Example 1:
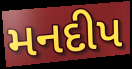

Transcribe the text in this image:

મનદીપ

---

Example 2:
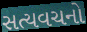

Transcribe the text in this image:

સત્યવચનો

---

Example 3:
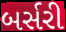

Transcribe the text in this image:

બર્સરી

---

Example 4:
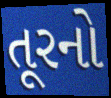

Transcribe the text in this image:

તૂરનો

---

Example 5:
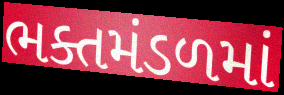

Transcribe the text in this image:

ભક્તમંડળમાં